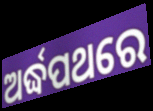
ଅର୍ଦ୍ଧପଥରେ